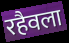
रहैवला